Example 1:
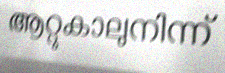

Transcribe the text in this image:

ആറ്റുകാലുനിന്ന്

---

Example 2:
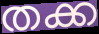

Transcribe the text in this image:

തക്ക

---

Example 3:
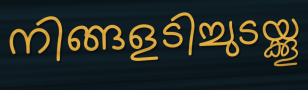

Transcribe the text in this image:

നിങ്ങളടിച്ചുടയ്ക്കൂ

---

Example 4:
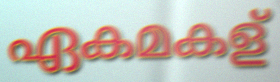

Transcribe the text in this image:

ഏകമകള്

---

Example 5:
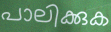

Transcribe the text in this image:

പാലിക്കുക